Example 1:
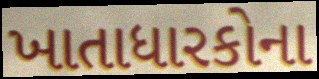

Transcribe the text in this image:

ખાતાધારકોના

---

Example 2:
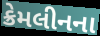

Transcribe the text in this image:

ક્રેમલીનના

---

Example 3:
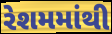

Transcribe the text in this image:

રેશમમાંથી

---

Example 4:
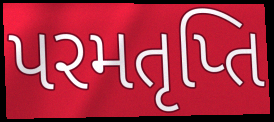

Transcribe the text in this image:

પરમતૃપ્તિ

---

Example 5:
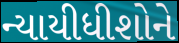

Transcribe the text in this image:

ન્યાયીધીશોને